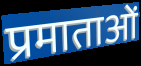
प्रमाताओं